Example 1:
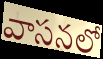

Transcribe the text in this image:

వాసనలో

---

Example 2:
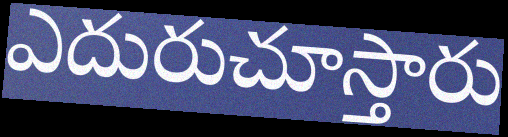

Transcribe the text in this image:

ఎదురుచూస్తారు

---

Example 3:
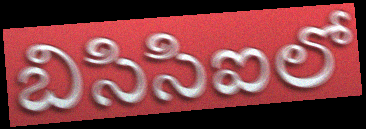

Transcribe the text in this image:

బిసిసిఐలో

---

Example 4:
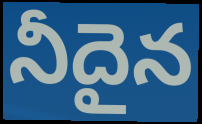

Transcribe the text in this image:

నీదైన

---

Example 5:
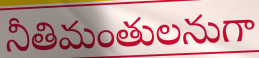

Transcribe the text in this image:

నీతిమంతులనుగా